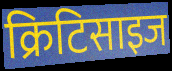
क्रिटिसाइज